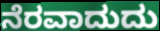
ನೆರವಾದುದು